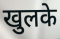
खुलके